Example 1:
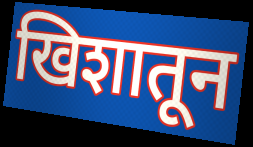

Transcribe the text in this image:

खिशातून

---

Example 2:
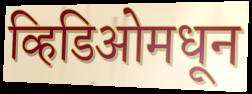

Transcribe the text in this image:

व्हिडिओमधून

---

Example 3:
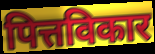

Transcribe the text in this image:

पित्तविकार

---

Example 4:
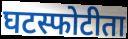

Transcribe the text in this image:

घटस्फोटीता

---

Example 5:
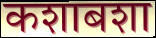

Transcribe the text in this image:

कशाबशा